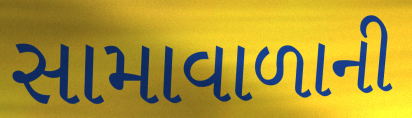
સામાવાળાની